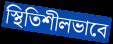
স্থিতিশীলভাবে